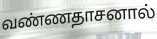
வண்ணதாசனால்